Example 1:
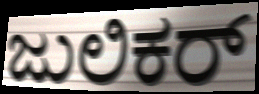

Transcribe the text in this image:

ಜುಲಿಕರ್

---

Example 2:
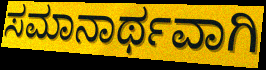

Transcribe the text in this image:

ಸಮಾನಾರ್ಥವಾಗಿ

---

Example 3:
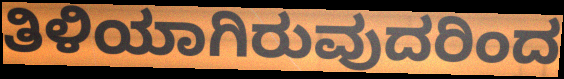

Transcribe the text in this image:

ತಿಳಿಯಾಗಿರುವುದರಿಂದ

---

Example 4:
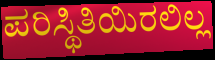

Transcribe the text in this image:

ಪರಿಸ್ಥಿತಿಯಿರಲಿಲ್ಲ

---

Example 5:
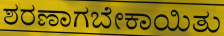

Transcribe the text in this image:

ಶರಣಾಗಬೇಕಾಯಿತು